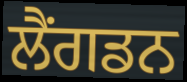
ਲੈਂਗਡਨ